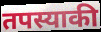
तपस्याकी